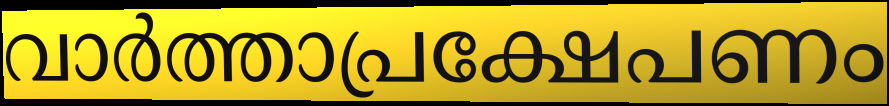
വാർത്താപ്രക്ഷേപണം